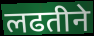
लढतीने